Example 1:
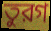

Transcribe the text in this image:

তুরগ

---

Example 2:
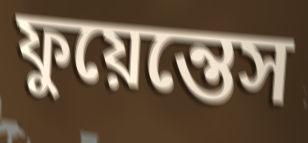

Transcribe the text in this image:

ফুয়েন্তেস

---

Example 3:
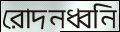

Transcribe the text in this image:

রোদনধ্বনি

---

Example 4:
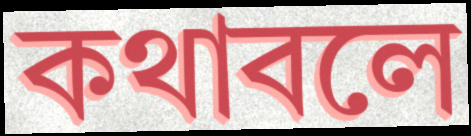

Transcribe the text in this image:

কথাবলে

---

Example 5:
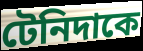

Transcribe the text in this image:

টেনিদাকে